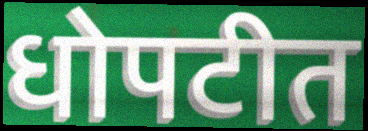
धोपटीत